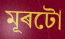
মূৰটো